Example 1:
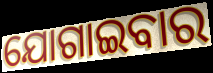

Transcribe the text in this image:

ଯୋଗାଇବାର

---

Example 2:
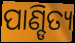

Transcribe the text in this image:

ପାଣ୍ଡିତ୍ୟ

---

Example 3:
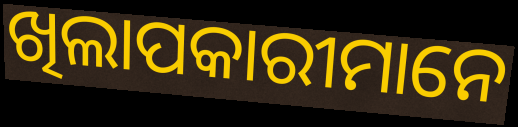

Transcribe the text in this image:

ଖିଲାପକାରୀମାନେ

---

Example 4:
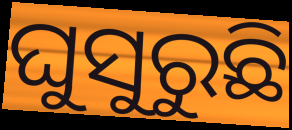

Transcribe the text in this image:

ଘୁସୁରୁଛି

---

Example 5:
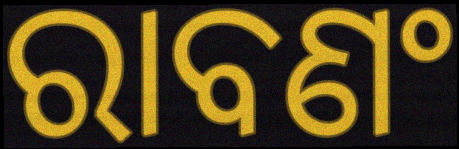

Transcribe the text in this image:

ରାବଣଂ